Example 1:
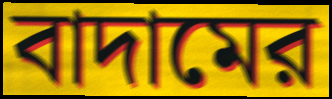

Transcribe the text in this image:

বাদামের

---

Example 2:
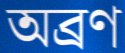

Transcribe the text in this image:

অব্রণ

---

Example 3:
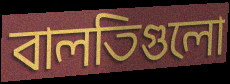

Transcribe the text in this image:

বালতিগুলো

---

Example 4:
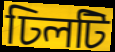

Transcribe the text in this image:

ঢিলটি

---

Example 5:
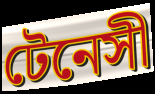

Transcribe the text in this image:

টেনেসী